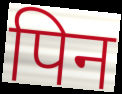
पिन